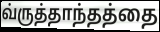
வ்ருத்தாந்தத்தை